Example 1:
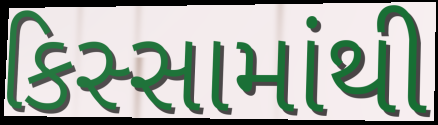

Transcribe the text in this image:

કિસ્સામાંથી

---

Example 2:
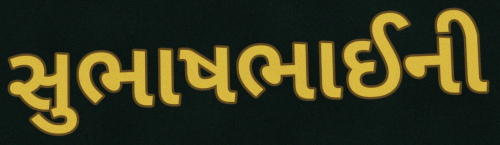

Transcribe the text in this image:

સુભાષભાઈની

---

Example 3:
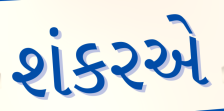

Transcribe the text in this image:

શંકરએ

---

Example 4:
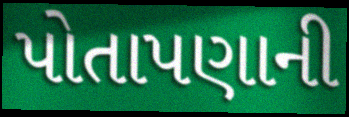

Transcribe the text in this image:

પોતાપણાની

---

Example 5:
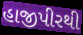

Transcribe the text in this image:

હાજીપીરથી